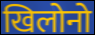
खिलोनो